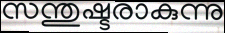
സന്തുഷ്ടരാകുന്നു